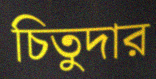
চিতুদার